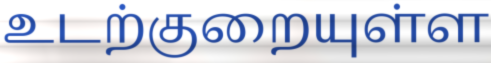
உடற்குறையுள்ள